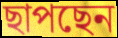
ছাপছেন